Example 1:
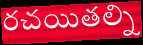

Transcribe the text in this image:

రచయితల్ని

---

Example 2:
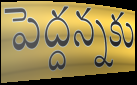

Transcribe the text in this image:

పెద్దన్నకు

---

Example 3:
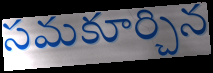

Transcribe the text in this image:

సమకూర్చిన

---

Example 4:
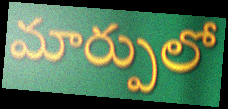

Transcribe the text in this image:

మార్పులో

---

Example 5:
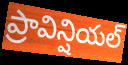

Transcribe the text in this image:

ప్రావిన్షియల్